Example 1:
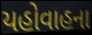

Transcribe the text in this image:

યહોવાહના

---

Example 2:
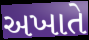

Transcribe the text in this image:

અખાતે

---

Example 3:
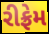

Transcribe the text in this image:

રીફ્રેમ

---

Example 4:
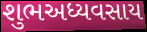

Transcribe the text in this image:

શુભઅધ્યવસાય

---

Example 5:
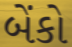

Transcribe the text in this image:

બેંકો